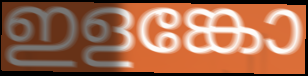
ഇളങ്കോ